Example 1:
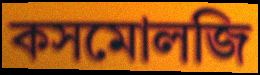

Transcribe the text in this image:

কসমোলজি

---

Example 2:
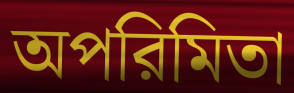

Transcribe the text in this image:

অপরিমিতা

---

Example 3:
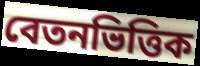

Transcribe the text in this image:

বেতনভিত্তিক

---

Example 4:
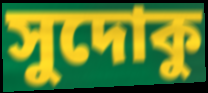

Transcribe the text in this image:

সুদোকু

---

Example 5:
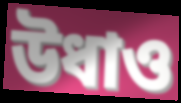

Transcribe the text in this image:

উধাও